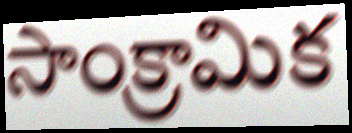
సాంక్రామిక